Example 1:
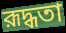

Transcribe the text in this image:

রূদ্ধতা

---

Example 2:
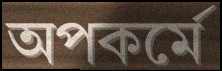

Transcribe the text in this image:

অপকর্মে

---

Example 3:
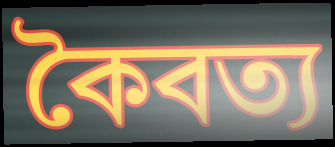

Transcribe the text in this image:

কৈবত্য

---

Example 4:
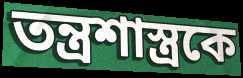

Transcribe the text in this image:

তন্ত্রশাস্ত্রকে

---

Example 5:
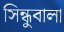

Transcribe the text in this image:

সিন্ধুবালা